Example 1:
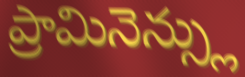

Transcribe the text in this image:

ప్రామినెన్స్లు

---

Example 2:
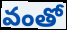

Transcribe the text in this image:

వంతో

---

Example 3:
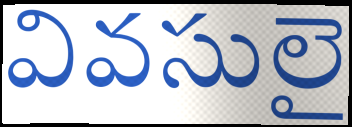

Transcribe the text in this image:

వివసులై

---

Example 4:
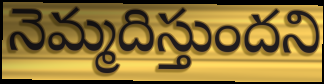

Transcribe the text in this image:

నెమ్మదిస్తుందని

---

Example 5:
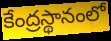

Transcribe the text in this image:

కేంద్రస్థానంలో